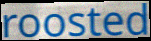
roosted